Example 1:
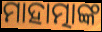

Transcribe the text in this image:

ମାହାତ୍ମାଙ୍କ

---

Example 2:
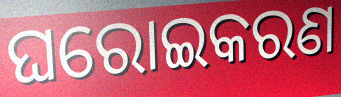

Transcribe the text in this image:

ଘରୋଇକରଣ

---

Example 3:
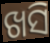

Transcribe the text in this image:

ଖସି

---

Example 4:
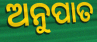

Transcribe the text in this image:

ଅନୁପାତ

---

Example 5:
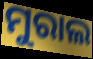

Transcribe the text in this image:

ମୁରାଲ